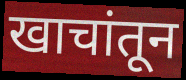
खाचांतून